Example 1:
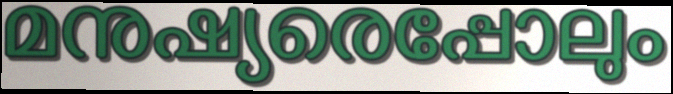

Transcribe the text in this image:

മനുഷ്യരെപ്പോലും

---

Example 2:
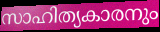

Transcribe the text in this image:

സാഹിത്യകാരനും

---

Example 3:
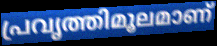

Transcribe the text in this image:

പ്രവൃത്തിമൂലമാണ്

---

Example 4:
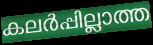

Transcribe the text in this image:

കലർപ്പില്ലാത്ത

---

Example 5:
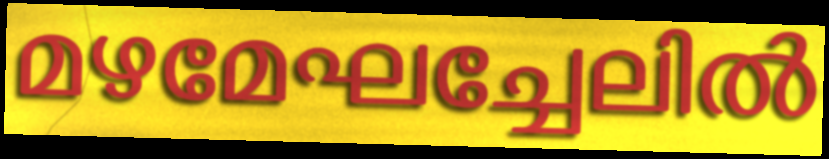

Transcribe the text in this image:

മഴമേഘച്ചേലിൽ